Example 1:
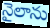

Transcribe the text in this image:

నైలాను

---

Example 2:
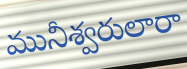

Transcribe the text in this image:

మునీశ్వరులారా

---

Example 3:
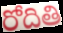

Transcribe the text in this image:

రోదితి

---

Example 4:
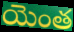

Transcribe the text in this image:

యెంత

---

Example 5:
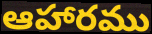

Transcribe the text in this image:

ఆహారము